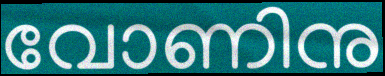
വോണിനു